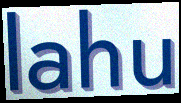
lahu